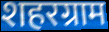
शहरग्राम